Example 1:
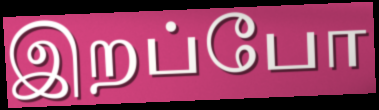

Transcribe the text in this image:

இறப்போ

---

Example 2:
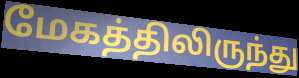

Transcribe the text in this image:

மேகத்திலிருந்து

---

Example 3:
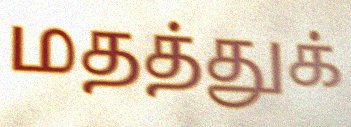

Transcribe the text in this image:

மதத்துக்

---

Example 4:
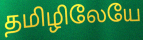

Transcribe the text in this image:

தமிழிலேயே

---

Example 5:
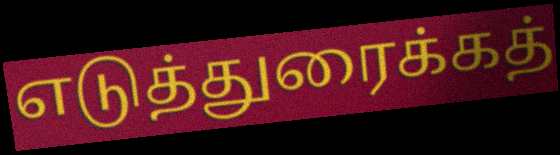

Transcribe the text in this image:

எடுத்துரைக்கத்